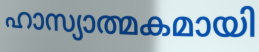
ഹാസ്യാത്മകമായി